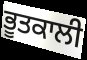
ਭੂਤਕਾਲੀ